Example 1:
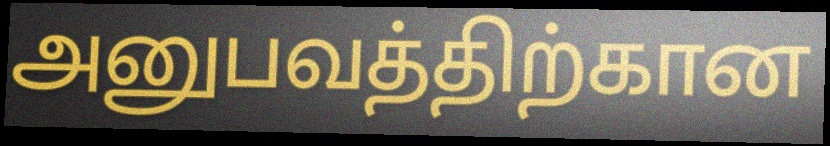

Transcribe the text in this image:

அனுபவத்திற்கான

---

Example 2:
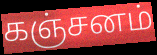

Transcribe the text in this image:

கஞ்சனம்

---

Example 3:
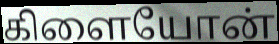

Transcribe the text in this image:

கிளையோன்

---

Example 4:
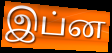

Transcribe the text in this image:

இப்ன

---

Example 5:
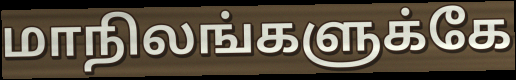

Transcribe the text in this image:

மாநிலங்களுக்கே